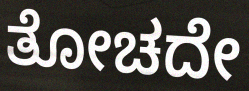
ತೋಚದೇ